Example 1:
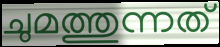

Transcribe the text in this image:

ചുമത്തുന്നത്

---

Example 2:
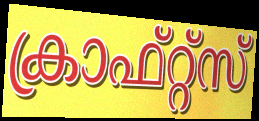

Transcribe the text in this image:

ക്രാഫ്റ്റ്സ്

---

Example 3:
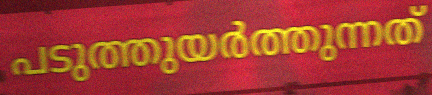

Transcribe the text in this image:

പടുത്തുയർത്തുന്നത്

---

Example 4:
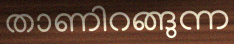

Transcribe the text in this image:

താണിറങ്ങുന്ന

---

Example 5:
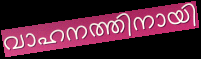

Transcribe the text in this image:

വാഹനത്തിനായി